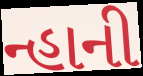
ન્હાની